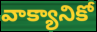
వాక్యానికో